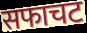
सफाचट